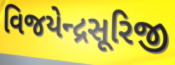
વિજયેન્દ્રસૂરિજી